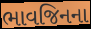
ભાવજિનના